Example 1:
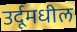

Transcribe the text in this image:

उर्दूमधील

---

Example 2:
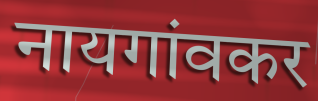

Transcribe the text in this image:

नायगांवकर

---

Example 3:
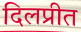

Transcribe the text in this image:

दिलप्रीत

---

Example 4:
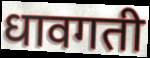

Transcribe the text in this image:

धावगती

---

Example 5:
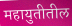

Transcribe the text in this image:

महायुतीतील